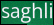
saghli